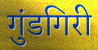
गुंडगिरी